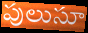
పులుసూ